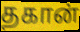
தகான்